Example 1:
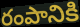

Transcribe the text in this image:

రంపానికి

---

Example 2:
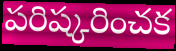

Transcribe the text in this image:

పరిష్కరించక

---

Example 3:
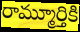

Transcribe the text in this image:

రామ్మూర్తికి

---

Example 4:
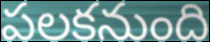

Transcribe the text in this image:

పలకనుంది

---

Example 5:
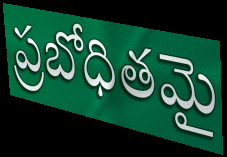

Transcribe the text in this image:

ప్రబోధితమై